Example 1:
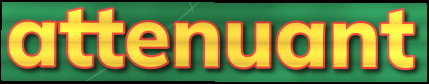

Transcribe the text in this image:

attenuant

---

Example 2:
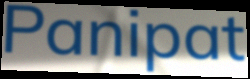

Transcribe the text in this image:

Panipat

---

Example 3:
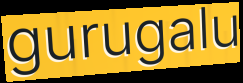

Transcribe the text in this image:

gurugalu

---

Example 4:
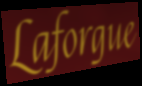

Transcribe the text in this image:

Laforgue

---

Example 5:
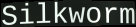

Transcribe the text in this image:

Silkworm